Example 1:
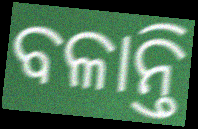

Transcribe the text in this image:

ବଳାନ୍ତି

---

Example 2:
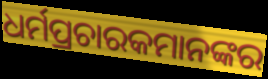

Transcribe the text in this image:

ଧର୍ମପ୍ରଚାରକମାନଙ୍କର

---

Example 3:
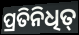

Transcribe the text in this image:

ପ୍ରତିନିଧିତ୍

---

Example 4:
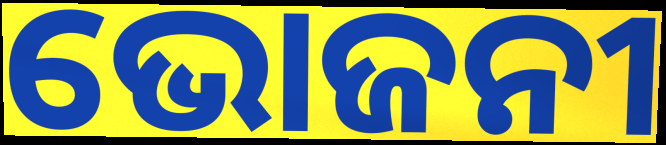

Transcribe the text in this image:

ଭୋଜନୀ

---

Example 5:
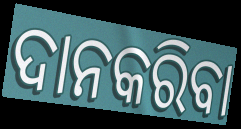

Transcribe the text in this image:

ଦାନକରିବା